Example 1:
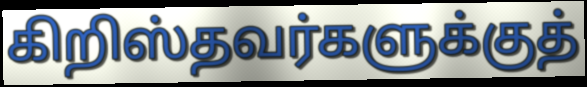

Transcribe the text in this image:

கிறிஸ்தவர்களுக்குத்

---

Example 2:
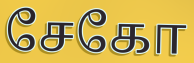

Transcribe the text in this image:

சேகோ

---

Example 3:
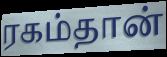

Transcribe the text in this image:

ரகம்தான்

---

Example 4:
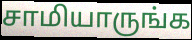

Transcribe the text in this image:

சாமியாருங்க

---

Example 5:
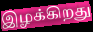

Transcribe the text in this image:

இழக்கிறது